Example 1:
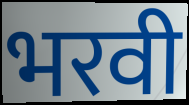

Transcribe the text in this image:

भरवी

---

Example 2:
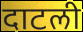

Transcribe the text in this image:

दाटली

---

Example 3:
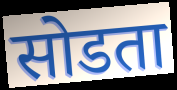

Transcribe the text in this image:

सोडता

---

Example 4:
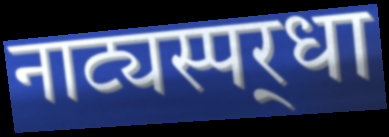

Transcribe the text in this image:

नाट्यस्पर्धा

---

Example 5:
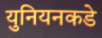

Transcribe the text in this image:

युनियनकडे